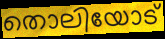
തൊലിയോട്